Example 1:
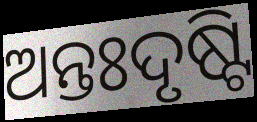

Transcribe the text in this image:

ଅନ୍ତଃଦୃଷ୍ଟି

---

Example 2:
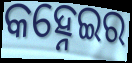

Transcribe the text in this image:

କହ୍ନେଇର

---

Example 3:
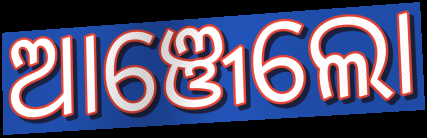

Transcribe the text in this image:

ଆଞ୍ଜେଲୋ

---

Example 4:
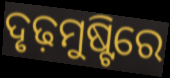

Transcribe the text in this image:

ଦୃଢ଼ମୁଷ୍ଟିରେ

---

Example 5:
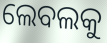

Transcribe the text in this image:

ଲେବଲକୁ